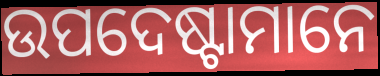
ଉପଦେଷ୍ଟାମାନେ